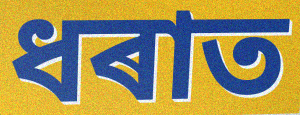
ধৰাত